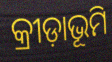
କ୍ରୀଡ଼ାଭୂମି